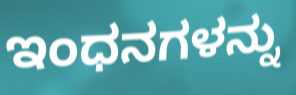
ಇಂಧನಗಳನ್ನು